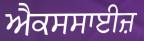
ਐਕਸਸਾਈਜ਼